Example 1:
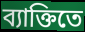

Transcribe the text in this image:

ব্যাক্তিতে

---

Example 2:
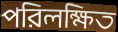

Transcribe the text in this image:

পরিলক্ষিত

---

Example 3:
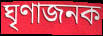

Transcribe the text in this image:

ঘৃণাজনক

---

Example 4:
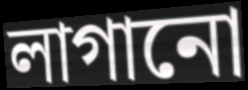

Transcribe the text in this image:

লাগানো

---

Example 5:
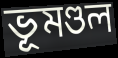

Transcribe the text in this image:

ভূমণ্ডল